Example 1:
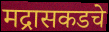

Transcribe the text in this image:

मद्रासकडचे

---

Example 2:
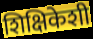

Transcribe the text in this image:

शिक्षिकेशी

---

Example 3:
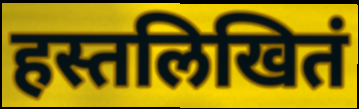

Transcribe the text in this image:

हस्तलिखितं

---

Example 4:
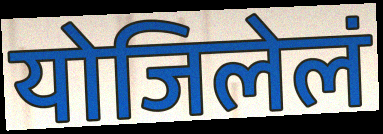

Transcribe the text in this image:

योजिलेलं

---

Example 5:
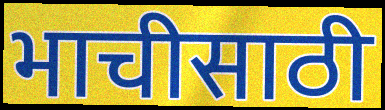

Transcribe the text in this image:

भाचीसाठी